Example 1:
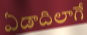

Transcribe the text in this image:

ఏడాదిలాగే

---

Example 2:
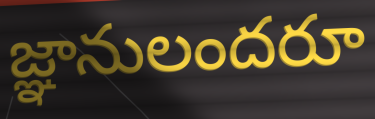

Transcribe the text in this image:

జ్ఞానులందరూ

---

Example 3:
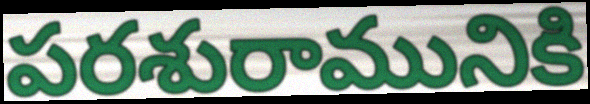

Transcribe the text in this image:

పరశురామునికి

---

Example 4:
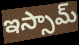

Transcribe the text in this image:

ఇస్సామ్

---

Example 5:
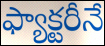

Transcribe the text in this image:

ఫ్యాక్టరీనే